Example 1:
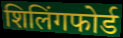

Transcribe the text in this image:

शिलिंगफोर्ड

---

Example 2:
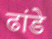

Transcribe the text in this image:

ढांडे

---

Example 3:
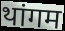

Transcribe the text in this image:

थांगम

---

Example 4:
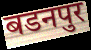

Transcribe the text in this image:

बडनपुर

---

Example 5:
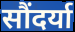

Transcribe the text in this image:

सौंदर्या